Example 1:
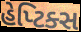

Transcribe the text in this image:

હેપ્ટિક્સ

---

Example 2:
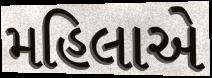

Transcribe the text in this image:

મહિલાએ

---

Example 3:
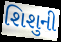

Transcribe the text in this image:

શિશુની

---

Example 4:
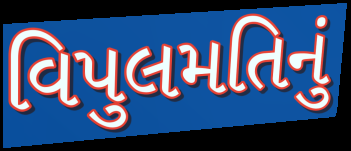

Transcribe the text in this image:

વિપુલમતિનું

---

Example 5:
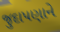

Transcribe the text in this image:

જુદાપણાને